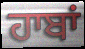
ਹਾਬਾਂ